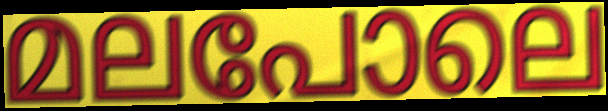
മലപോലെ